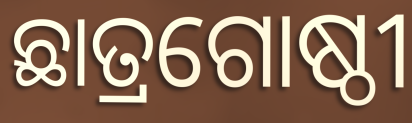
ଛାତ୍ରଗୋଷ୍ଠୀ